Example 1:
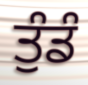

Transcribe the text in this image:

ਤੁੰਡੰ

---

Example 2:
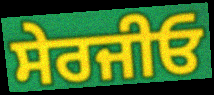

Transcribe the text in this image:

ਸੇਰਜੀਓ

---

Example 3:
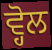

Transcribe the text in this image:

ਵ੍ਹੋਲ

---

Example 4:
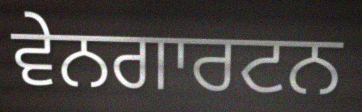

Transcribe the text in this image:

ਵੇਨਗਾਰਟਨ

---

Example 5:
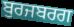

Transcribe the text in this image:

ਬੁਰਜਬਰਗ